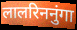
लालरिननुंगा